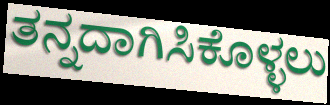
ತನ್ನದಾಗಿಸಿಕೊಳ್ಳಲು